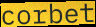
corbet